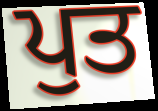
ਪੁਤ